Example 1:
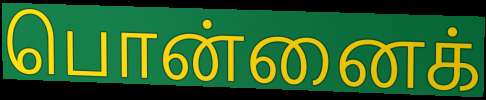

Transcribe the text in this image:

பொன்னைக்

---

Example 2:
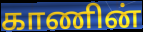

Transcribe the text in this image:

காணின்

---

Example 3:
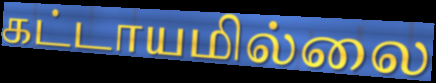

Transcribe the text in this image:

கட்டாயமில்லை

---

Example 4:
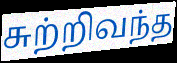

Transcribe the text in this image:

சுற்றிவந்த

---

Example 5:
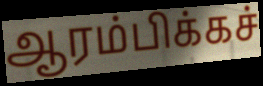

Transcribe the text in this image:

ஆரம்பிக்கச்